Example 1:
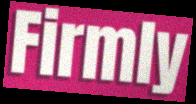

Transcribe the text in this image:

Firmly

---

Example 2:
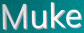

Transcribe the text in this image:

Muke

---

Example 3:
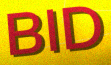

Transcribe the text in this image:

BID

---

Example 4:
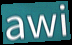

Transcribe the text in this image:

awi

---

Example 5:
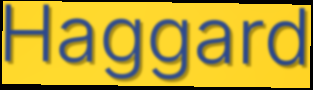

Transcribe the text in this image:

Haggard